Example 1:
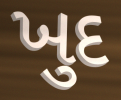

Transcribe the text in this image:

ખુદ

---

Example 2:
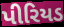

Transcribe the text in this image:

પીરિયડ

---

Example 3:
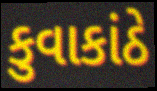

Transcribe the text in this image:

કુવાકાંઠે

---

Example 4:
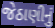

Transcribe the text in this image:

જેઠાણીનું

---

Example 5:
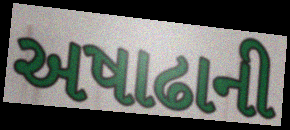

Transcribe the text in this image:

અષાઢાની